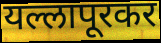
यल्लापूरकर